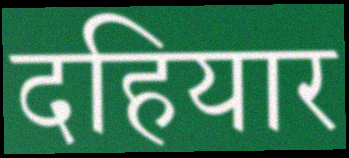
दहियार